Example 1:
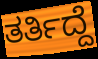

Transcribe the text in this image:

ತರ್ತಿದ್ದೆ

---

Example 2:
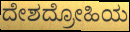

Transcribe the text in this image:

ದೇಶದ್ರೋಹಿಯ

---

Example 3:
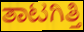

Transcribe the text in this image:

ತಾಟಗಿತ್ತಿ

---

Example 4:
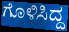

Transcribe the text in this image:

ಗೊಳಿಸಿದ್ದ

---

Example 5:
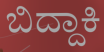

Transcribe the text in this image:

ಬಿದ್ದಾಕಿ